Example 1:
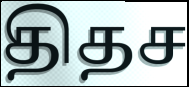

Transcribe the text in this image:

திதச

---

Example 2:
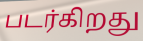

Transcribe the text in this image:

படர்கிறது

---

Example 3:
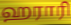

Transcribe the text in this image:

ஹராரி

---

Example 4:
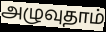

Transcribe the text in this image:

அழுவுதாம்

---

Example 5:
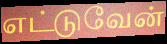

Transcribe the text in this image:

எட்டுவேன்